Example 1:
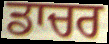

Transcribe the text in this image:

ਡਾਚਰ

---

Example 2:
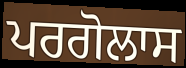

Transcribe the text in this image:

ਪਰਗੋਲਾਸ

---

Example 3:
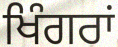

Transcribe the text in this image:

ਖਿੰਗਰਾਂ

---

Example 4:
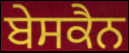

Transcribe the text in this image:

ਬੇਸਕੈਨ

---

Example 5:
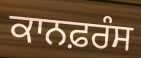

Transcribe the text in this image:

ਕਾਨਫ਼ਰੰਸ